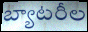
బ్యాటరీల